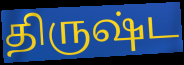
திருஷ்ட